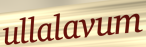
ullalavum